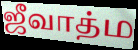
ஜீவாத்ம